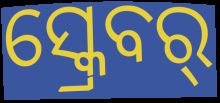
ସ୍କ୍ରେବର୍